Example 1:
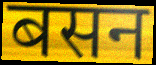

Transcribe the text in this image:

बसन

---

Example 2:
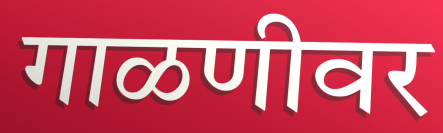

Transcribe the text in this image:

गाळणीवर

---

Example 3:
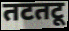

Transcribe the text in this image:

तटतटू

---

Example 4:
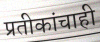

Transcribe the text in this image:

प्रतीकांचाही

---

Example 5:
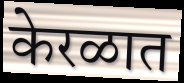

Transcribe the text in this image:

केरळात